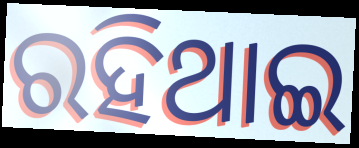
ରହିଥାଇ